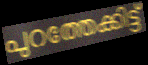
പുറത്തേക്കിട്ട്